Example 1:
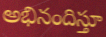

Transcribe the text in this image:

అభినందిస్తూ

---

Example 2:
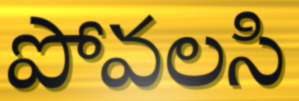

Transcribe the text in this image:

పోవలసి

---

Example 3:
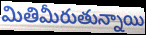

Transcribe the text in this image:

మితిమీరుతున్నాయి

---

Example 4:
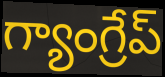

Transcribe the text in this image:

గ్యాంగ్రేప్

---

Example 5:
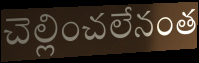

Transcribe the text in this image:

చెల్లించలేనంత